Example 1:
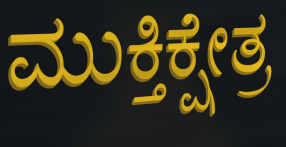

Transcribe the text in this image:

ಮುಕ್ತಿಕ್ಷೇತ್ರ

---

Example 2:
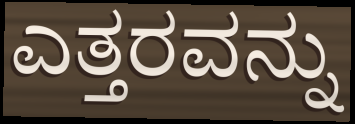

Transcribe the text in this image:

ಎತ್ತರವನ್ನು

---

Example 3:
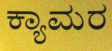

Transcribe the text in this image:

ಕ್ಯಾಮರ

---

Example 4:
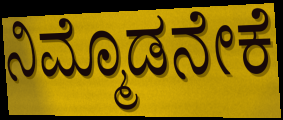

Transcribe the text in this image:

ನಿಮ್ಮೊಡನೇಕೆ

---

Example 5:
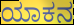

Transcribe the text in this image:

ಯಾಕನ